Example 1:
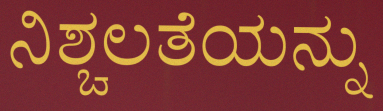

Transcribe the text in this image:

ನಿಶ್ಚಲತೆಯನ್ನು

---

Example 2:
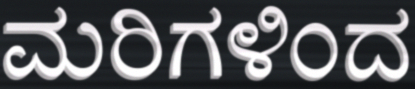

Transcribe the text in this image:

ಮರಿಗಳಿಂದ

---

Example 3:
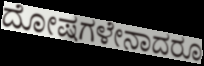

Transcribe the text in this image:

ದೋಷಗಳೇನಾದರೂ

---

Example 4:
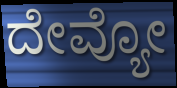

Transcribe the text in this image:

ದೇವ್ಯೋ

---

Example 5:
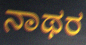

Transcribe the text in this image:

ನಾಥರ